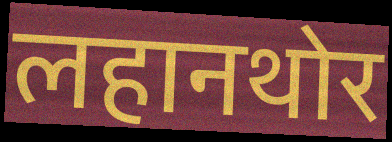
लहानथोर